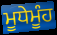
ਮੂਧੇਮੂੰਹ